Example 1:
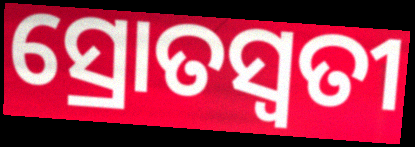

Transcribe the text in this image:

ସ୍ରୋତସ୍ଵତୀ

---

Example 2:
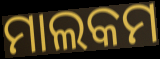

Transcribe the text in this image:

ମାଲକମ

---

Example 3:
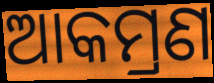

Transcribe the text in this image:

ଆକମ୍ରଣ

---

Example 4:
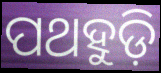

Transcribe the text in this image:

ପଥହୁଡ଼ି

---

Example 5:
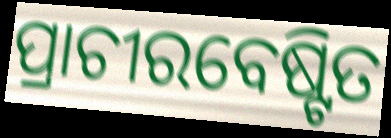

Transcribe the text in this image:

ପ୍ରାଚୀରବେଷ୍ଟିତ